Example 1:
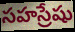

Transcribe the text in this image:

సహస్రేషు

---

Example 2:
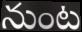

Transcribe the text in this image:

నుంట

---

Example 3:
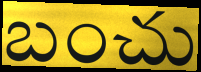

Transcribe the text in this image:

బంచు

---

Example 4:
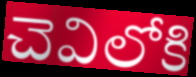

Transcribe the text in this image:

చెవిలోకి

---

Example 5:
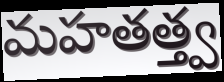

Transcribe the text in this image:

మహతత్త్వ